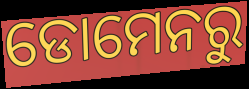
ଡୋମେନରୁ